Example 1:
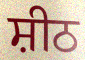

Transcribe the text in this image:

ਸ਼ੀਠ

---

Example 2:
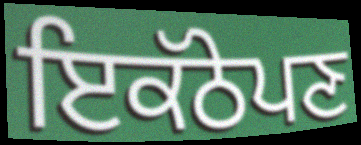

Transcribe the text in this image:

ਇਕੱਠੇਪਣ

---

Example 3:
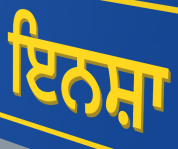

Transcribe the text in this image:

ਇਨਸ਼ਾ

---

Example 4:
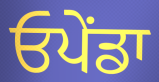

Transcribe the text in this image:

ਓਪੇਂਡਾ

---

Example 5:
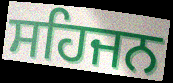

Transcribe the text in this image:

ਸਹਿਜਨ